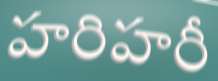
హరిహరీ